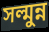
সল্মুন্ন